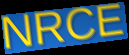
NRCE